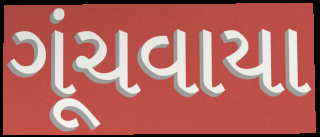
ગૂંચવાયા